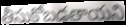
తీసుకోబడతాయని